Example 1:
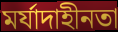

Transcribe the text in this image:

মর্যাদাহীনতা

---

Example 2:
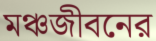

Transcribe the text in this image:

মঞ্চজীবনের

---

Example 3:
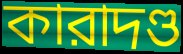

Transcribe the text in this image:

কারাদণ্ড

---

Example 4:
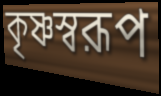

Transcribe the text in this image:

কৃষ্ণস্বরূপ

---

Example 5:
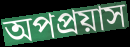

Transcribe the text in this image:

অপপ্রয়াস